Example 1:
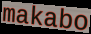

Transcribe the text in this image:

makabo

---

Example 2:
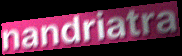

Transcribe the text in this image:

nandriatra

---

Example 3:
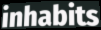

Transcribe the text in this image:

inhabits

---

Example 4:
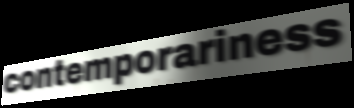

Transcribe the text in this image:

contemporariness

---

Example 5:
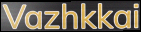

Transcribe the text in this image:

Vazhkkai